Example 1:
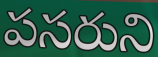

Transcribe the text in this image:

పసరుని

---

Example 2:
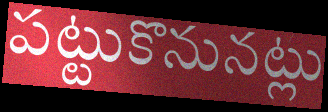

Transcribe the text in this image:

పట్టుకొనునట్లు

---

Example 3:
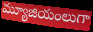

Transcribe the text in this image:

మ్యూజియంలుగా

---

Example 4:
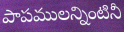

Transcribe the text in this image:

పాపములన్నింటినీ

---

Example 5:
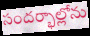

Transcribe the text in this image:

సందర్భాల్లోను